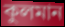
কুলমান